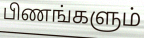
பிணங்களும்